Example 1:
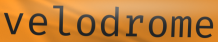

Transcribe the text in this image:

velodrome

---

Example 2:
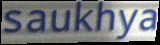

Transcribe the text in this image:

saukhya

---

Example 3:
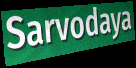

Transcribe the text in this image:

Sarvodaya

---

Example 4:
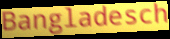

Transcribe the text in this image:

Bangladesch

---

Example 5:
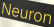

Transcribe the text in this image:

Neuron